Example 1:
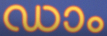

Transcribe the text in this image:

ഡാം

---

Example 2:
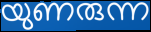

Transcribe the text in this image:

യുണരുന്ന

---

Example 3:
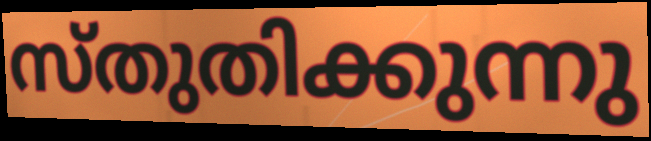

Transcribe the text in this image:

സ്തുതിക്കുന്നു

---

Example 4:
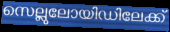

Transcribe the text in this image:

സെല്ലുലോയിഡിലേക്ക്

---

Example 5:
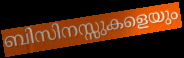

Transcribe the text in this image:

ബിസിനസ്സുകളെയും